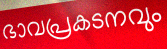
ഭാവപ്രകടനവും